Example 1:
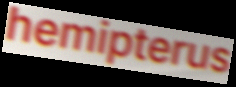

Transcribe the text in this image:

hemipterus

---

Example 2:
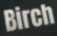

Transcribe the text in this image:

Birch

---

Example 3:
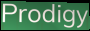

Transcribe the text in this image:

Prodigy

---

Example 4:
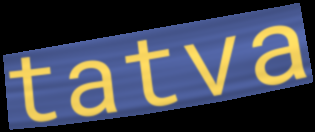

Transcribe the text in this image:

tatva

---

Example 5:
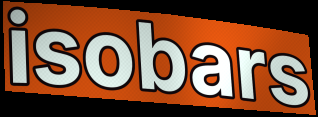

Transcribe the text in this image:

isobars